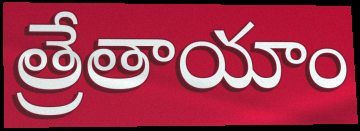
త్రేతాయాం